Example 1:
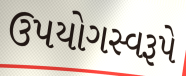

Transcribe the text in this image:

ઉપયોગસ્વરૂપે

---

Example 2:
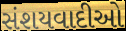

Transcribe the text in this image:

સંશયવાદીઓ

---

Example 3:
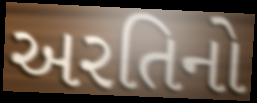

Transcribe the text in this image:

અરતિનો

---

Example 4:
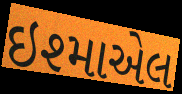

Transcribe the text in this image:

ઇશ્માએલ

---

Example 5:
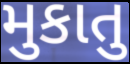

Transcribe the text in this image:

મુકાતુ